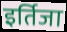
इर्तिजा